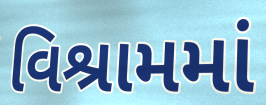
વિશ્રામમાં